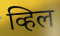
व्हिल